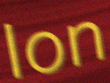
Ion